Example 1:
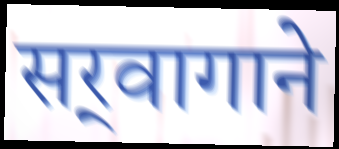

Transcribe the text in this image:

सर्वागाने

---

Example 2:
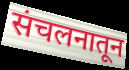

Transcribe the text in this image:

संचलनातून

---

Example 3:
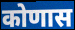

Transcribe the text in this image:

कोणास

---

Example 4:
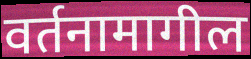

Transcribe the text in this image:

वर्तनामागील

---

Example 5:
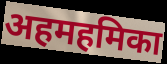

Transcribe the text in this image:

अहमहमिका